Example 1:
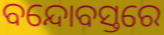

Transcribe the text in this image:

ବନ୍ଦୋବସ୍ତରେ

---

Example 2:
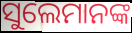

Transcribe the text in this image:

ସୁଲେମାନଙ୍କ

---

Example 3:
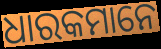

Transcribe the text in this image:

ଧାରକମାନେ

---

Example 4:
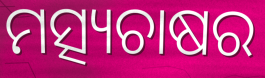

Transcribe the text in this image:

ମତ୍ସ୍ୟଚାଷର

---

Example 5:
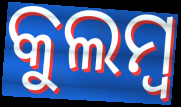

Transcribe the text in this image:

କୁଲମ୍ବ